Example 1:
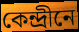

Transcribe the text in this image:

কেন্দ্রীনে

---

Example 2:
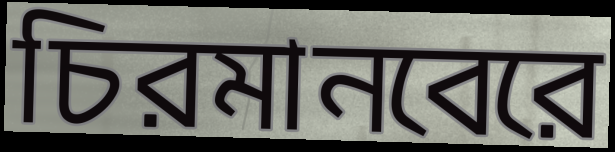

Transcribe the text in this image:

চিরমানবেরে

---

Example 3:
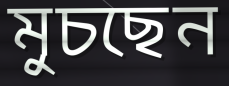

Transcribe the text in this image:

মুচছেন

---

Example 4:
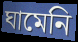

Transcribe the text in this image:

ঘামেনি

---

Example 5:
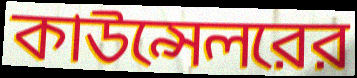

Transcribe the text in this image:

কাউন্সেলরের